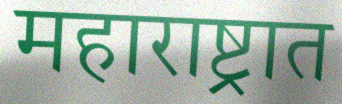
महाराष्ट्रात